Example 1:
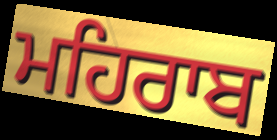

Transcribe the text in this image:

ਮਹਿਰਾਬ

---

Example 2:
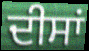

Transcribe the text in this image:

ਦੀਸਾਂ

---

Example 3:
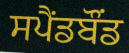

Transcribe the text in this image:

ਸਪੈਂਡਬੌਂਡ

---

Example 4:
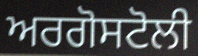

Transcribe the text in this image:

ਅਰਗੋਸਟੋਲੀ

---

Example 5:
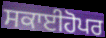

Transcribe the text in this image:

ਸਕਾਈਹੋਪਰ